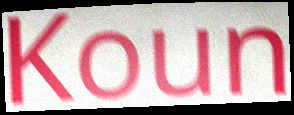
Koun